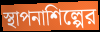
স্থাপনাশিল্পের